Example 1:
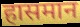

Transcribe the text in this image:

हासमान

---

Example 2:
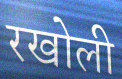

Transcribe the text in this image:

रखोली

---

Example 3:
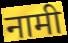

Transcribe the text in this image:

नामी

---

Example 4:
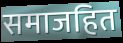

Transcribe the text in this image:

समाजहित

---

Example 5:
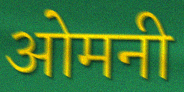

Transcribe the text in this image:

ओमनी